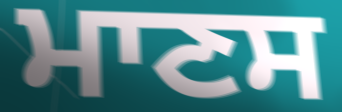
ਮਾਣਸ